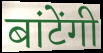
बांटेंगी